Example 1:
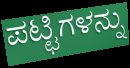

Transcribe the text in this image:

ಪಟ್ಟಿಗಳನ್ನು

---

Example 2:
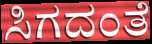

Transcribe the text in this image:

ಸಿಗದಂತೆ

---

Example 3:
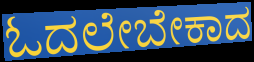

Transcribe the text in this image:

ಓದಲೇಬೇಕಾದ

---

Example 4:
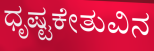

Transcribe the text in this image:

ಧೃಷ್ಟಕೇತುವಿನ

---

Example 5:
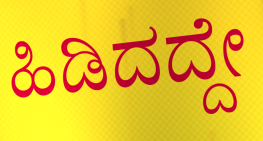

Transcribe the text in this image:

ಹಿಡಿದದ್ದೇ